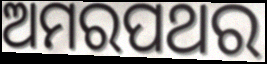
ଅମରପଥର